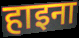
हाइना